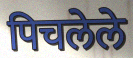
पिचलेले